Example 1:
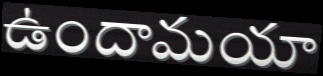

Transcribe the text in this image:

ఉందామయా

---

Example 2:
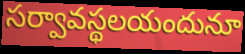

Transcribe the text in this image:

సర్వావస్థలయందునూ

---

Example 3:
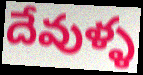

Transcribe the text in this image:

దేవుళ్ళ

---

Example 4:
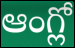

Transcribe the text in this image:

ఆంగ్లో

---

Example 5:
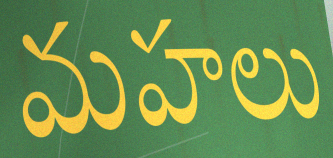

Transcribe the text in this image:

మహలు